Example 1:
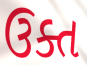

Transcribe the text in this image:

ઉક્ત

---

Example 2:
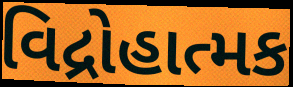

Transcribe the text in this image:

વિદ્રોહાત્મક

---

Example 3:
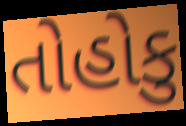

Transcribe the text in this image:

તોહોકુ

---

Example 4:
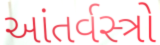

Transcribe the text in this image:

આંતર્વસ્ત્રો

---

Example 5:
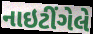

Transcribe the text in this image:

નાઇટીંગેલે